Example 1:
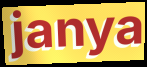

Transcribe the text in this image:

janya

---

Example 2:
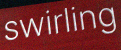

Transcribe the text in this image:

swirling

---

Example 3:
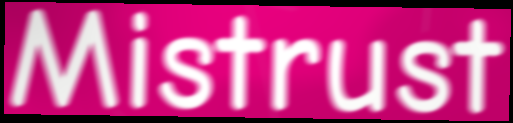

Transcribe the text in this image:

Mistrust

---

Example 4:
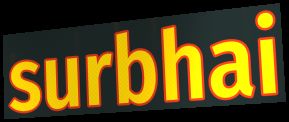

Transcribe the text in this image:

surbhai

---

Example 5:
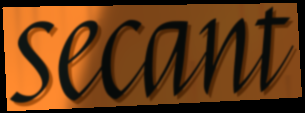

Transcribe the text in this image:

secant